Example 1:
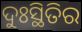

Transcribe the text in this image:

ଦୁଃସ୍ଥିତିର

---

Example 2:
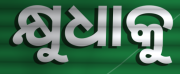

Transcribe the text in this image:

କ୍ଷୁଧାକୁ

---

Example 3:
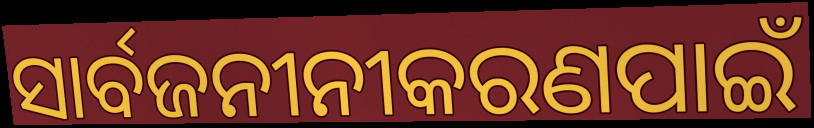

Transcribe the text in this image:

ସାର୍ବଜନୀନୀକରଣପାଇଁ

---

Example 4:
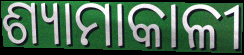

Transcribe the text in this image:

ଶ୍ୟାମାକାଳୀ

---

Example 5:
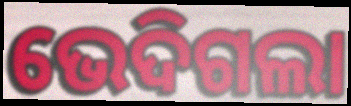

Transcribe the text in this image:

ଭେଦିଗଲା